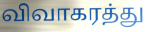
விவாகரத்து